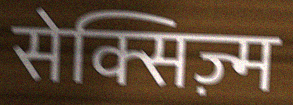
सेक्सिज़्म